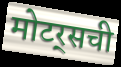
मोटर्सची